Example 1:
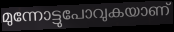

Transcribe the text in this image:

മുന്നോട്ടുപോവുകയാണ്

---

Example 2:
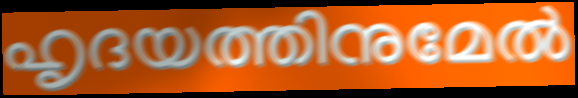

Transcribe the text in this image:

ഹൃദയത്തിനുമേൽ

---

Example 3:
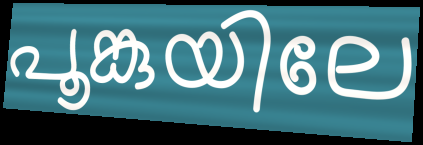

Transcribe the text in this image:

പൂങ്കുയിലേ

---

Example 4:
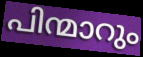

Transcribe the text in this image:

പിന്മാറും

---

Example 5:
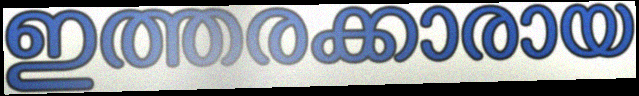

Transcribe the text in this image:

ഇത്തരക്കാരായ